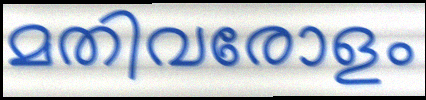
മതിവരോളം